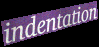
indentation